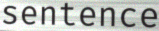
sentence